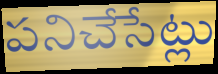
పనిచేసేట్లు